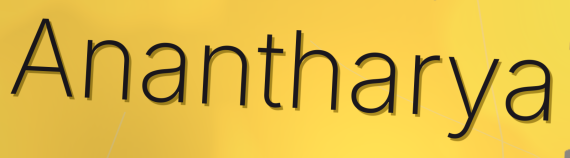
Anantharya